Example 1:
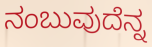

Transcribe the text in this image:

ನಂಬುವುದೆನ್ನ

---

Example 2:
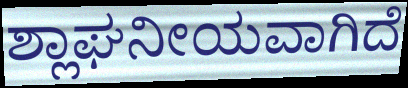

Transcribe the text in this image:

ಶ್ಲಾಘನೀಯವಾಗಿದೆ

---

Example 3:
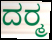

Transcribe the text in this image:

ದರ‍್ಮ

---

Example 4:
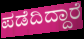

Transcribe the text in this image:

ಪಡೆದಿದ್ದಾರೆ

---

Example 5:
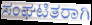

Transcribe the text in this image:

ಸಂಘಟಿತರಾಗಿ